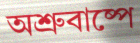
অশ্রুবাষ্পে